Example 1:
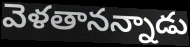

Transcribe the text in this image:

వెళతానన్నాడు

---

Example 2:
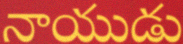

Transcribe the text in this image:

నాయుడు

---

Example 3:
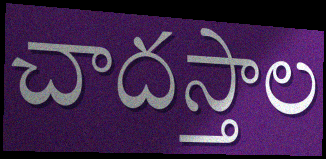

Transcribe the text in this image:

చాదస్తాల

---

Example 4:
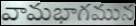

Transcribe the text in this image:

వామభాగమున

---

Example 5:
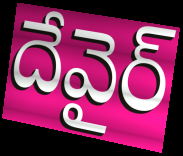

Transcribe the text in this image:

దేవైర్